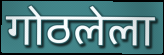
गोठलेला